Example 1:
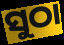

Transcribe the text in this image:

ସୁଠା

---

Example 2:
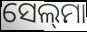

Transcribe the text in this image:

ସେଲ୍‌ମା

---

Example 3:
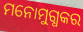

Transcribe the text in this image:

ମନୋମୁଗ୍ଧକର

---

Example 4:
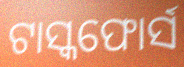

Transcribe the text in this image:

ଟାସ୍କଫୋର୍ସ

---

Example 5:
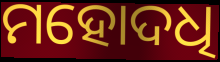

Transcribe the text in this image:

ମହୋଦଧି